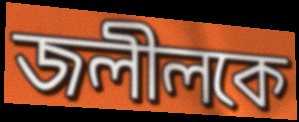
জলীলকে